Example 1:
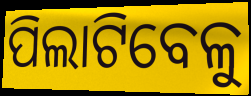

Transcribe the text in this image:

ପିଲାଟିବେଳୁ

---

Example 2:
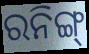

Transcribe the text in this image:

ରନିଙ୍ଗ୍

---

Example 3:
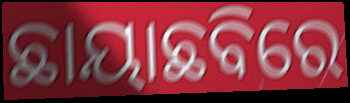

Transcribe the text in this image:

ଛାୟାଛବିରେ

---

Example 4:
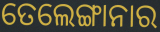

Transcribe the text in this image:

ତେଲେଙ୍ଗାନାର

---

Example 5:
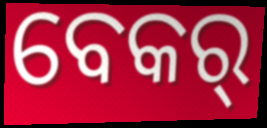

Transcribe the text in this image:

ବେକର୍